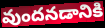
వుందనడానికి